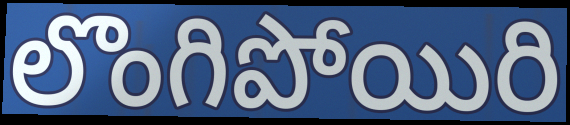
లొంగిపోయిరి